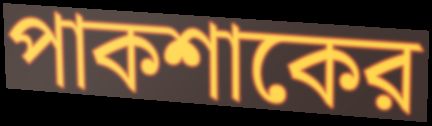
পাকশাকের